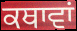
ਕਥਾਵਾਂ